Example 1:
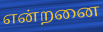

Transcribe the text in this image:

என்றனை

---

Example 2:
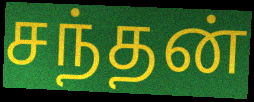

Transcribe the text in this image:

சந்தன்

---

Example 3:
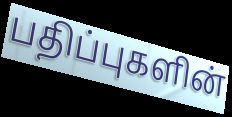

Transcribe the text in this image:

பதிப்புகளின்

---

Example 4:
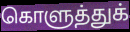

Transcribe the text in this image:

கொளுத்துக்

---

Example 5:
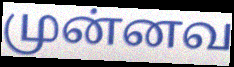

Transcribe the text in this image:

முன்னவ